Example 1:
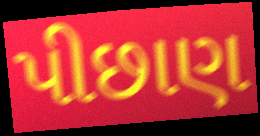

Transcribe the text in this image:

પીછાણ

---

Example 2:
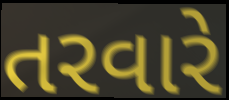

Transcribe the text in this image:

તરવારે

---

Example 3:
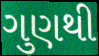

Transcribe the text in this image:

ગુણથી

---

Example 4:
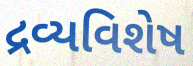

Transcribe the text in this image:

દ્રવ્યવિશેષ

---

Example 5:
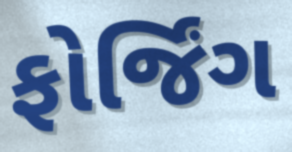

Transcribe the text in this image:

ફોર્જિંગ